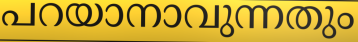
പറയാനാവുന്നതും